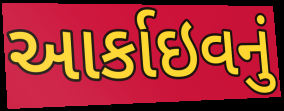
આર્કાઇવનું